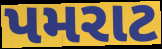
પમરાટ